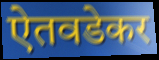
ऐतवडेकर